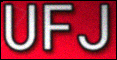
UFJ